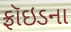
ફ્રૉઇડના